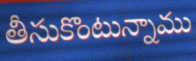
తీసుకొంటున్నాము